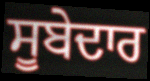
ਸੂਬੇਦਾਰ